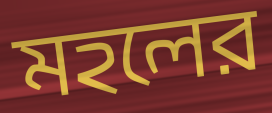
মহলের